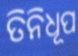
ତିନିଧୂପ